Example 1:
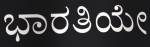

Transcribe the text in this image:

ಭಾರತಿಯೇ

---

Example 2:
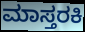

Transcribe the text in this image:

ಮಾಸ್ತರಕಿ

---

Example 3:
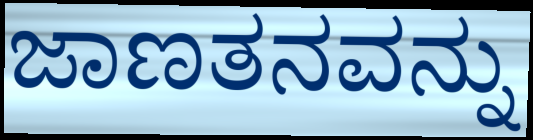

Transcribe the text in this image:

ಜಾಣತನವನ್ನು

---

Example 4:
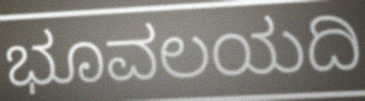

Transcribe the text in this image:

ಭೂವಲಯದಿ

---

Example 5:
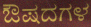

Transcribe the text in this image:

ಔಷದಗಳ